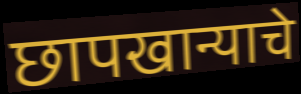
छापखान्याचे